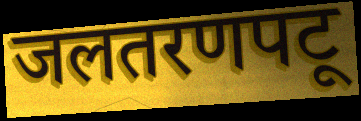
जलतरणपटू